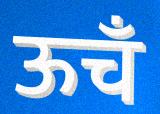
ऊचँ